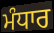
ਮੰਧਾਰ